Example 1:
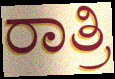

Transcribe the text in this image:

ರಾತ್ರಿ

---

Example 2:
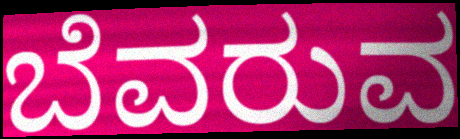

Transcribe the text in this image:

ಬೆವರುವ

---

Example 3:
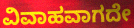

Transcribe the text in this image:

ವಿವಾಹವಾಗದೇ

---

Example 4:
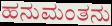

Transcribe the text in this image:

ಹನುಮಂತನು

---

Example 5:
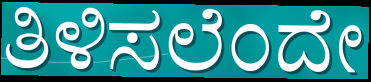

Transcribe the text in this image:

ತಿಳಿಸಲೆಂದೇ